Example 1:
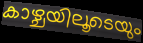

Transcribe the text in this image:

കാഴ്ചയിലൂടെയും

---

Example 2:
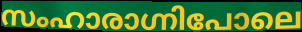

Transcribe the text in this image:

സംഹാരാഗ്നിപോലെ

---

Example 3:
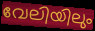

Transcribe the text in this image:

വേലിയിലും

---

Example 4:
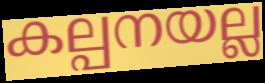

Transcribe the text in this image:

കല്പനയല്ല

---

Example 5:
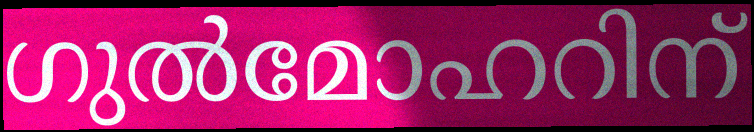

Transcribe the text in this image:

ഗുൽമോഹറിന്